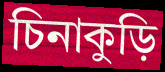
চিনাকুড়ি